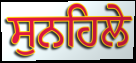
ਸੁਨਹਿਲੇ